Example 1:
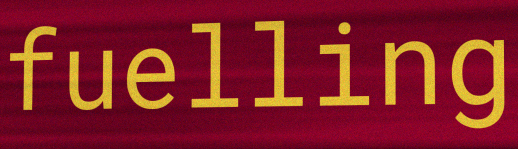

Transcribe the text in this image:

fuelling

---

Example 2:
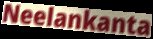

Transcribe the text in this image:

Neelankanta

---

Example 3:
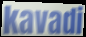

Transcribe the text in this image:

kavadi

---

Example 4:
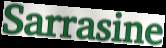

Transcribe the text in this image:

Sarrasine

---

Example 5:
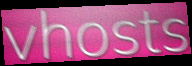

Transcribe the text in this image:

vhosts